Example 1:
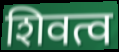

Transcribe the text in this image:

शिवत्व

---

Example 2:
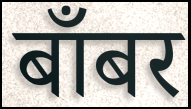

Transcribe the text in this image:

बाँबर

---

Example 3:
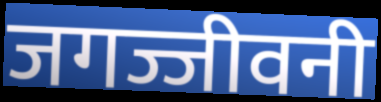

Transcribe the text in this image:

जगज्जीवनी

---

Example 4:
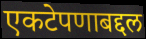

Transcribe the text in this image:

एकटेपणाबद्दल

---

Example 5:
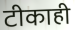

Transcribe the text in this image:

टीकाही